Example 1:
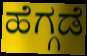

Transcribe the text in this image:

ಹೆಗ್ಗಡೆ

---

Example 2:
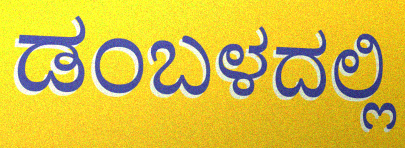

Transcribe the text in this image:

ಡಂಬಳದಲ್ಲಿ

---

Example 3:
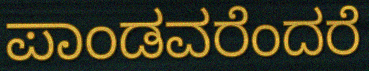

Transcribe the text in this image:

ಪಾಂಡವರೆಂದರೆ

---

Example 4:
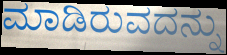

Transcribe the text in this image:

ಮಾಡಿರುವದನ್ನು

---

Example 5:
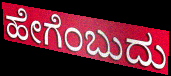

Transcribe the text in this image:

ಹೇಗೆಂಬುದು